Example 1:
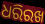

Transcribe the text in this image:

ଧରିରଖ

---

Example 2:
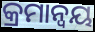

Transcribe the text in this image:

କ୍ରମାନ୍ୱୟ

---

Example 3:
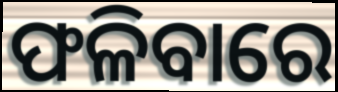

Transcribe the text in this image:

ଫଳିବାରେ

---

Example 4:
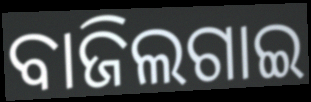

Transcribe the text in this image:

ବାଜିଲଗାଇ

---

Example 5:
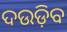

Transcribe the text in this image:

ଦଉଡ଼ିବ